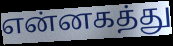
என்னகத்து